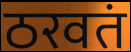
ठरवतं